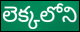
లెక్కలోని